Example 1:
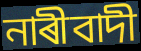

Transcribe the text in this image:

নাৰীবাদী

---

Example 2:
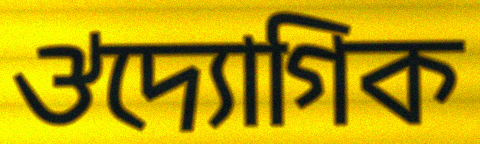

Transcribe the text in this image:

ঔদ্যোগিক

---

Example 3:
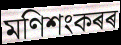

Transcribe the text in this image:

মণিশংকৰৰ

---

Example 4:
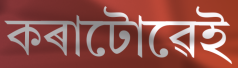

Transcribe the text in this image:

কৰাটোৱেই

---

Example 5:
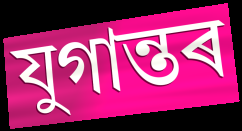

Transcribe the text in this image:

যুগান্তৰ